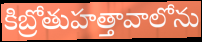
కిబ్రోతుహత్తావాలోను